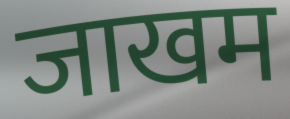
जाखम